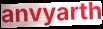
anvyarth